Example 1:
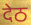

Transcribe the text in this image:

देठ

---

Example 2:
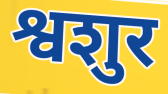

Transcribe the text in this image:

श्वशुर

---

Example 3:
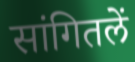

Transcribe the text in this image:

सांगितलें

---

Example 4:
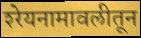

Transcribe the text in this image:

श्रेयनामावलीतून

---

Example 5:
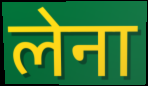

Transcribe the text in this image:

लेना